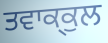
ਤਵਾਕ੍ਕੁਲ